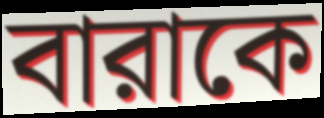
বারাকে